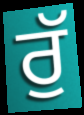
ਰੁੱ